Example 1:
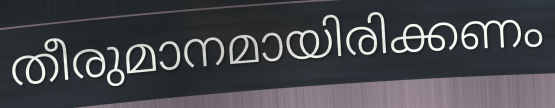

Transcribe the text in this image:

തീരുമാനമായിരിക്കണം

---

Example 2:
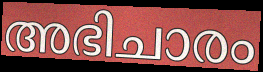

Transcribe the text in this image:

അഭിചാരം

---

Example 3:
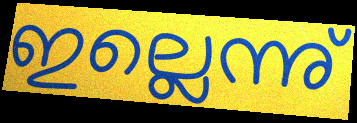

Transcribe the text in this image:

ഇല്ലെന്നു്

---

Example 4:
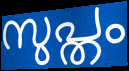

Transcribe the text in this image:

സുപ്തം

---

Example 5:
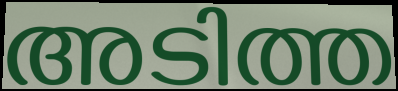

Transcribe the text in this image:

അടിത്ത